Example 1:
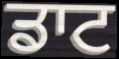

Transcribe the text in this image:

ਡਾਟ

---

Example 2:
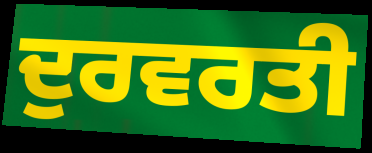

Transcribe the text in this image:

ਦੁਰਵਰਤੀ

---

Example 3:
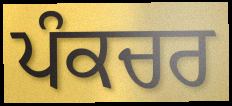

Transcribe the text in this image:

ਪੰਕਚਰ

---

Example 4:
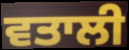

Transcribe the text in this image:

ਵਤਾਲੀ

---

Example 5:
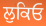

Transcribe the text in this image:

ਲੁਕਿਓ